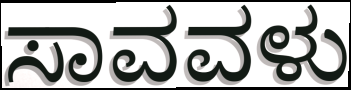
ಸಾವವಳು